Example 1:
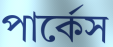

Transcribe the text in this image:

পার্কেস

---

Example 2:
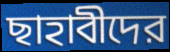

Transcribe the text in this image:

ছাহাবীদের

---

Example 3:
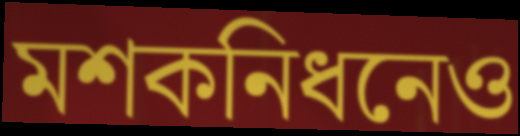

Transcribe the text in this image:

মশকনিধনেও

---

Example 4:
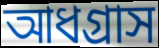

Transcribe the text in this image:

আধগ্রাস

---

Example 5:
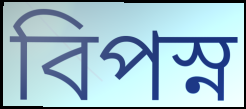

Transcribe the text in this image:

বিপস্ন